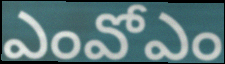
ఎంవోఎం